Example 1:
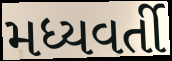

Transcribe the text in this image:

મધ્યવર્તી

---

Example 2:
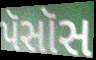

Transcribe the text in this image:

પૅસૉસ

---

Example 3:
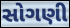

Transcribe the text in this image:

સોગણી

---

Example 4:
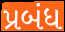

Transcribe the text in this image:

પ્રબંધ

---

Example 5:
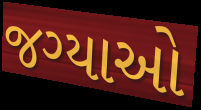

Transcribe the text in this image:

જગ્યાઓ